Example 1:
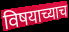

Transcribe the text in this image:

विषयाच्याच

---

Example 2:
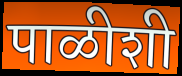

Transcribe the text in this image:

पाळीशी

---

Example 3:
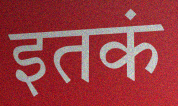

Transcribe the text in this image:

इतकं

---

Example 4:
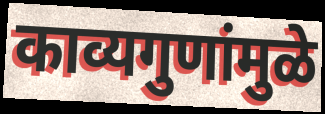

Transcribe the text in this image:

काव्यगुणांमुळे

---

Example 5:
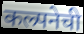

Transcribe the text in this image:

कल्पनेची